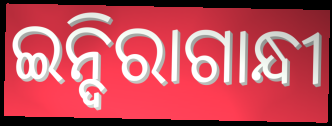
ଇନ୍ଦିରାଗାନ୍ଧୀ